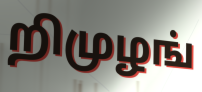
றிமுழங்